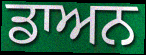
ਡਾਅਨ